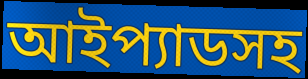
আইপ্যাডসহ